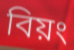
বিয়ং